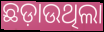
ଛଡ଼ାଉଥିଲା